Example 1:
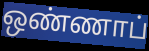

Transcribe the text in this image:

ஒண்ணாப்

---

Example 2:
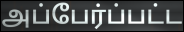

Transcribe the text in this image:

அப்பேர்ப்பட்ட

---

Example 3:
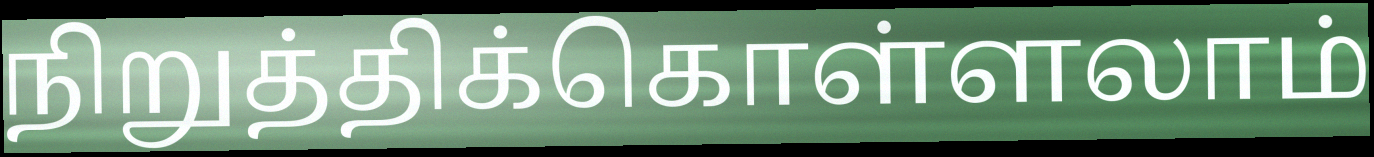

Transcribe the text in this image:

நிறுத்திக்கொள்ளலாம்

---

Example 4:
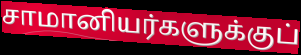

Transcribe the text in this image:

சாமானியர்களுக்குப்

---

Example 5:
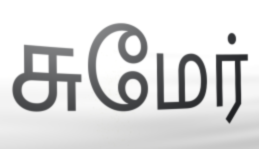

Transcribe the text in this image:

சுமேர்